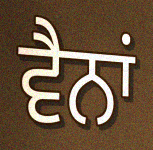
ਵੈਨਾਂ